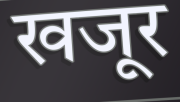
खजूर